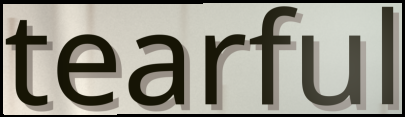
tearful